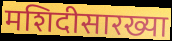
मशिदीसारख्या